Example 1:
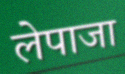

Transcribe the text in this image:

लेपाजा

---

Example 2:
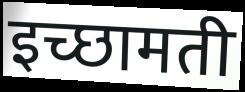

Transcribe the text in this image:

इच्छामती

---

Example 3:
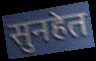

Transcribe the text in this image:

सुनहेत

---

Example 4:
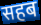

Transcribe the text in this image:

सहब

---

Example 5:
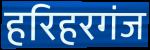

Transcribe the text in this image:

हरिहरगंज